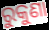
ରୁକୁଣା